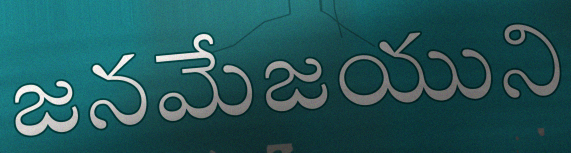
జనమేజయుని